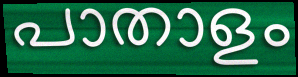
പാതാളം